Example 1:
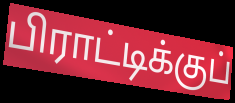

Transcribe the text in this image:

பிராட்டிக்குப்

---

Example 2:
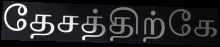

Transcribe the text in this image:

தேசத்திற்கே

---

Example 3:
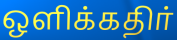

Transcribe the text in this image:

ஒளிக்கதிர்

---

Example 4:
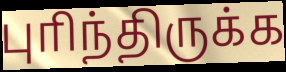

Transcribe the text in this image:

புரிந்திருக்க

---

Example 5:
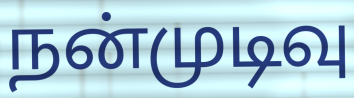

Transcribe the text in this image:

நன்முடிவு